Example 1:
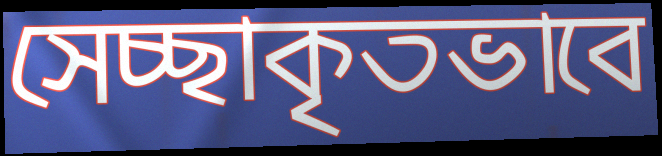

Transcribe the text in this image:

সেচ্ছাকৃতভাবে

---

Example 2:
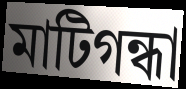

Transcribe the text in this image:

মাটিগন্ধা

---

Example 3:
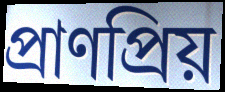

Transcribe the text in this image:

প্রাণপ্রিয়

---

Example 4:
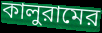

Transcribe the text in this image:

কালুরামের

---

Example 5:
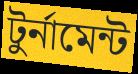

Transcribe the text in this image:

টুর্নামেন্ট